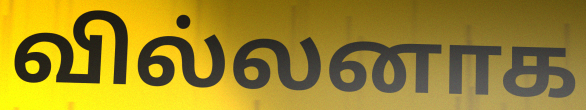
வில்லனாக